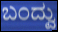
ಬಂದ್ವು